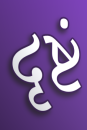
દૃષ્ટં